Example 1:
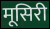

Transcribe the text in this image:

मूसिरी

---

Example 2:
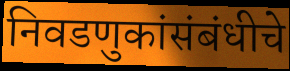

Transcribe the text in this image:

निवडणुकांसंबंधीचे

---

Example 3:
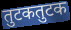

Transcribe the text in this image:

तुटकतुटक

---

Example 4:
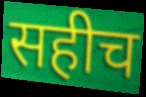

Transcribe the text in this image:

सहीच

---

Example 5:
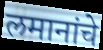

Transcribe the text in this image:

लमानांचे